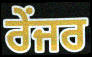
ਰੇਂਜਰ